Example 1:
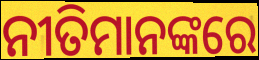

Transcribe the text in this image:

ନୀତିମାନଙ୍କରେ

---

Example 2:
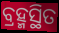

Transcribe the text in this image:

ବ୍ରହ୍ମସ୍ଥିତ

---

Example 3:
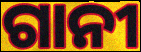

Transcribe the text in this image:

ଗାନୀ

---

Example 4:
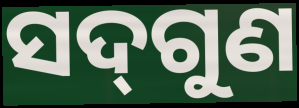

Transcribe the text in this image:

ସଦ୍‌ଗୁଣ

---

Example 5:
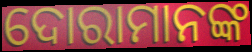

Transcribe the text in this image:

ଦୋରାମାନଙ୍କ